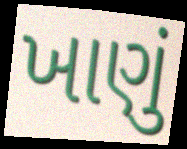
ખાણું